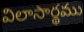
విలాసార్థము